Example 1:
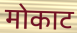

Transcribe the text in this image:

मोकाट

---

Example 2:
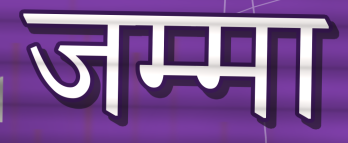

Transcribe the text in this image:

जम्मा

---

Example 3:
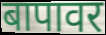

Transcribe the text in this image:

बापावर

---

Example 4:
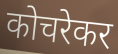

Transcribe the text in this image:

कोचरेकर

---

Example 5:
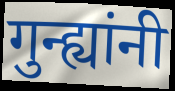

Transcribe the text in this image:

गुन्ह्यांनी